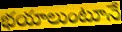
భయాలుంటూనే